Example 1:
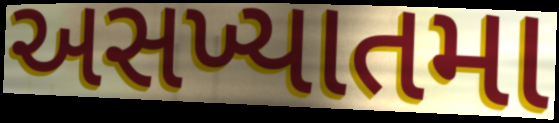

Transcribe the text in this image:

અસખ્યાતમા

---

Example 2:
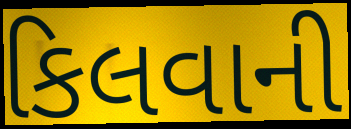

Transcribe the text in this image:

કિલવાની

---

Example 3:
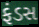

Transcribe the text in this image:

ફંડસ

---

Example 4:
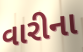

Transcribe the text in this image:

વારીના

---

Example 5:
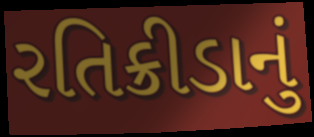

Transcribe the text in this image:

રતિક્રીડાનું